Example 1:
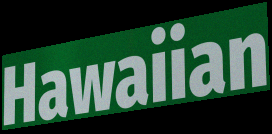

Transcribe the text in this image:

Hawaiian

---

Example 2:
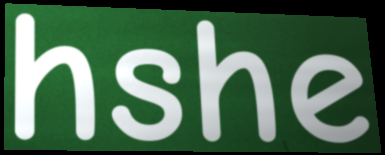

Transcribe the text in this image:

hshe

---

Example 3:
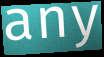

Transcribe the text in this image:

any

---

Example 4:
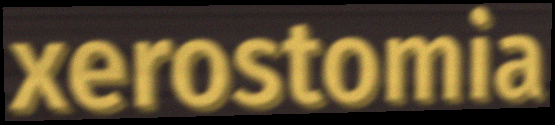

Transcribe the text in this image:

xerostomia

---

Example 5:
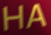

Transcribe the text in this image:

HA